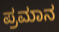
ಪ್ರಮಾನ